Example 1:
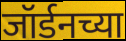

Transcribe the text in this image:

जॉर्डनच्या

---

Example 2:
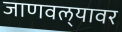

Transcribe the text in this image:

जाणवल्यावर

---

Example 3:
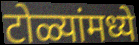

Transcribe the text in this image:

टोळ्यांमध्ये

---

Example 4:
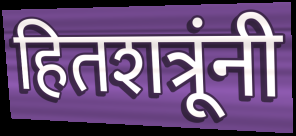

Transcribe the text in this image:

हितशत्रूंनी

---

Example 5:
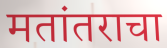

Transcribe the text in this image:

मतांतराचा